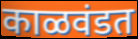
काळवंडत